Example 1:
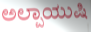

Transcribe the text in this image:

ಅಲ್ಪಾಯುಷಿ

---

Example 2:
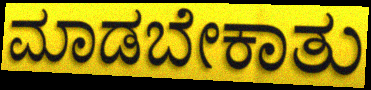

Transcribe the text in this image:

ಮಾಡಬೇಕಾತು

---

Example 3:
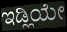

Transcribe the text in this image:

ಇಡ್ಲಿಯೇ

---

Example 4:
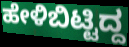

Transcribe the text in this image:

ಹೇಳಿಬಿಟ್ಟಿದ್ದ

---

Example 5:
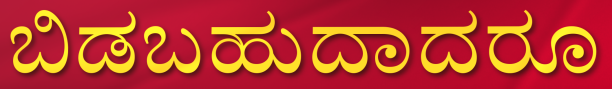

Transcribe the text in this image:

ಬಿಡಬಹುದಾದರೂ